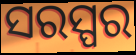
ସରସ୍ପର